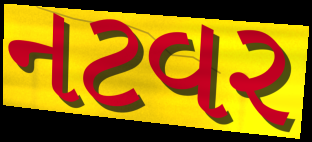
નટવર